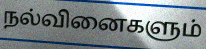
நல்வினைகளும்